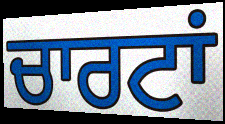
ਚਾਰਟਾਂ